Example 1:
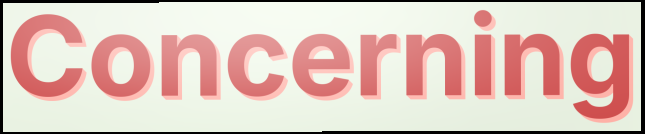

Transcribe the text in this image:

Concerning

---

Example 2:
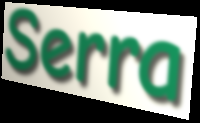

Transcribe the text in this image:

Serra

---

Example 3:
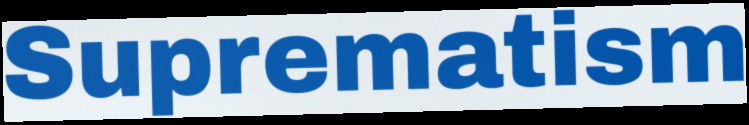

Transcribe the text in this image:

Suprematism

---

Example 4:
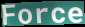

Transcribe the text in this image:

Force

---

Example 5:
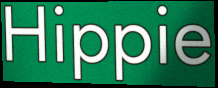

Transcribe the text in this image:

Hippie